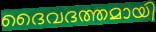
ദൈവദത്തമായി